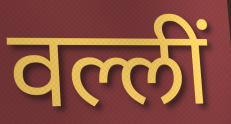
वल्लीं